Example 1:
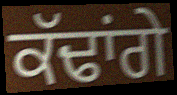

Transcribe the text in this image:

ਕੱਢਾਂਗੇ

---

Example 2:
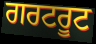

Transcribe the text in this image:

ਗਰਟਰੂਟ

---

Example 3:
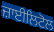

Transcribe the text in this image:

ਜ਼ਾਈਲਿਟੋਲ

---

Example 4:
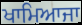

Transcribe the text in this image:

ਖਾਮਿਆਜਾ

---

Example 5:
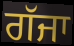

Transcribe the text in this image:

ਗੱਜਾ